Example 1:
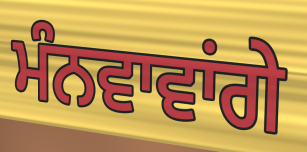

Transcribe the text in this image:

ਮੰਨਵਾਵਾਂਗੇ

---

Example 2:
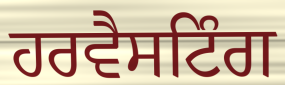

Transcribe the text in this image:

ਹਰਵੈਸਟਿੰਗ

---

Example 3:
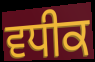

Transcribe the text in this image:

ਵਧੀਕ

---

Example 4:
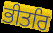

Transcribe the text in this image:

ਭੀਤਰਿ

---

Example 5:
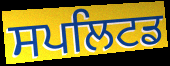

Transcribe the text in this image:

ਸਪਲਿਟਡ